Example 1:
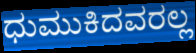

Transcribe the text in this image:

ಧುಮುಕಿದವರಲ್ಲ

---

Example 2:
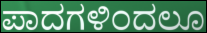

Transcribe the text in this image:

ಪಾದಗಳಿಂದಲೂ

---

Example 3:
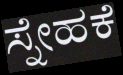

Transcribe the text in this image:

ಸ್ನೇಹಕೆ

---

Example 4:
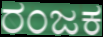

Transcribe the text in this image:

ರಂಜಕ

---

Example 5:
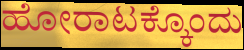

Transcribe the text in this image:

ಹೋರಾಟಕ್ಕೊಂದು